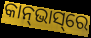
କାନ୍‌ଭାସ୍‌ରେ